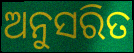
ଅନୁସରିତ